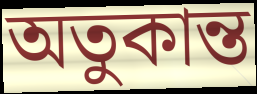
অতুকান্ত